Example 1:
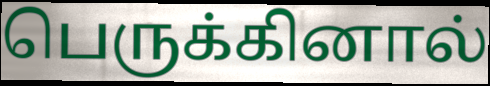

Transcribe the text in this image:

பெருக்கினால்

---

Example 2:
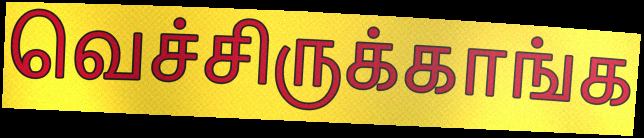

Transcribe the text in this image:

வெச்சிருக்காங்க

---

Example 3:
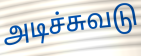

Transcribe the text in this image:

அடிச்சுவடு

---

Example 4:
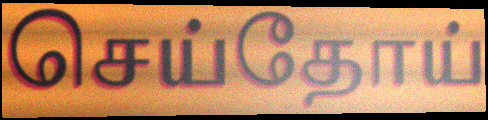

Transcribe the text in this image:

செய்தோய்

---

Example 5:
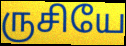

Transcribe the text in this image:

ருசியே